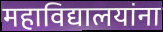
महाविद्यालयांना